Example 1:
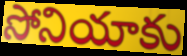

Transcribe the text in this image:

సోనియాకు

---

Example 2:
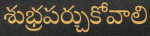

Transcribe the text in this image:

శుభ్రపర్చుకోవాలి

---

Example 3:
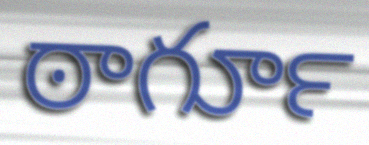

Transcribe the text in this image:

ఠాగూర్‍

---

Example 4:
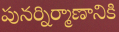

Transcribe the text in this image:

పునర్నిర్మాణానికి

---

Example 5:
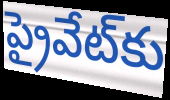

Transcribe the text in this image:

ప్రైవేట్‌కు